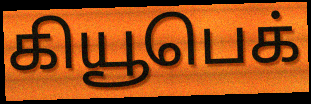
கியூபெக்